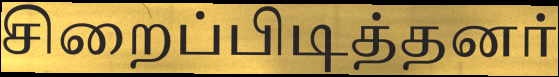
சிறைப்பிடித்தனர்